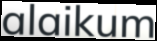
alaikum